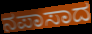
ನಪಾಸಾದ